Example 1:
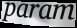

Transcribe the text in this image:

param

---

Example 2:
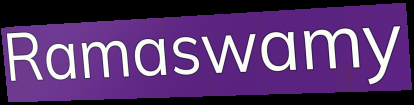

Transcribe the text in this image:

Ramaswamy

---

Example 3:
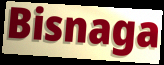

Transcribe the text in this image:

Bisnaga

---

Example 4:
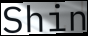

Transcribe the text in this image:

Shin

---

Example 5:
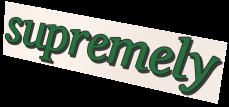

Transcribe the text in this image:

supremely